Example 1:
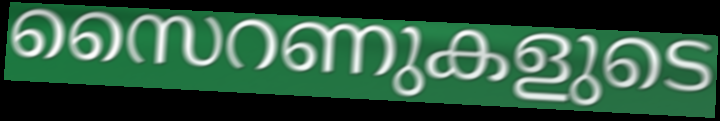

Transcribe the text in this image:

സൈറണുകളുടെ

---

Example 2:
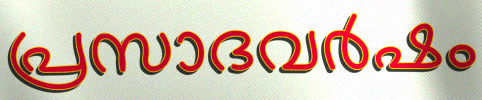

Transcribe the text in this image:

പ്രസാദവർഷം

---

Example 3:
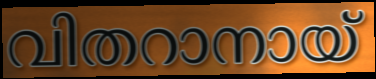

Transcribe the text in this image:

വിതറാനായ്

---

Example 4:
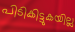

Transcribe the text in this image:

പിടികിട്ടുകയില്ല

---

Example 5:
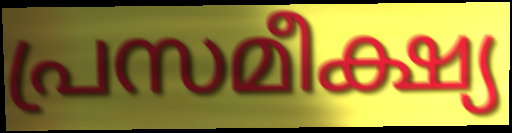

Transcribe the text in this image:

പ്രസമീക്ഷ്യ